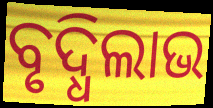
ବୃଦ୍ଧିଲାଭ